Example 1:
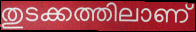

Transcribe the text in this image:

തുടക്കത്തിലാണ്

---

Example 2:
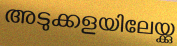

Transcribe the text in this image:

അടുക്കളയിലേയ്ക്കു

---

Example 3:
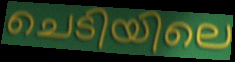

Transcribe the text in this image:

ചെടിയിലെ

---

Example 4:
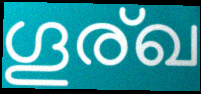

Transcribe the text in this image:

ഗൂര്ഖ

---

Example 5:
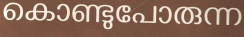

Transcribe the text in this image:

കൊണ്ടുപോരുന്ന